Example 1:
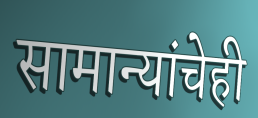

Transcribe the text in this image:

सामान्यांचेही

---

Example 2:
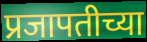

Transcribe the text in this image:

प्रजापतीच्या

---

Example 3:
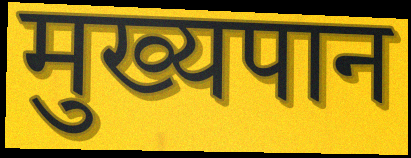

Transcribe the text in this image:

मुख्यपान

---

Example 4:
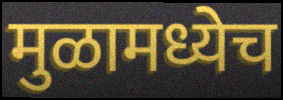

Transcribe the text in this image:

मुळामध्येच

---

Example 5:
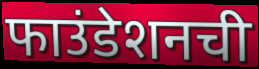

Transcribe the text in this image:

फाउंडेशनची